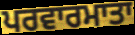
ਪਰਵਾਰਮਾਤਾ